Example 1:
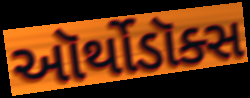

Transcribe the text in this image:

ઑર્થોડૉક્સ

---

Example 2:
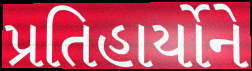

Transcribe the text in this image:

પ્રતિહાર્યોને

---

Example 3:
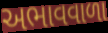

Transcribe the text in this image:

અભાવવાળા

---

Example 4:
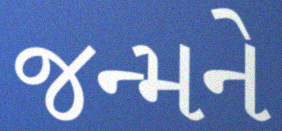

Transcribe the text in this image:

જન્મને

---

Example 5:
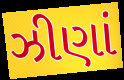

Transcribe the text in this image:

ઝીણાં